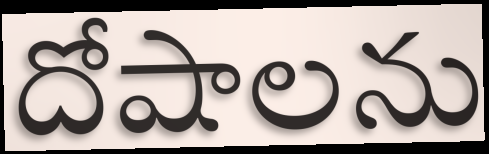
దోషాలను